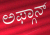
ಅಫ್ಗಾನ್